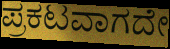
ಪ್ರಕಟವಾಗದೇ